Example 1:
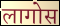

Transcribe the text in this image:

लागोस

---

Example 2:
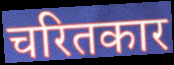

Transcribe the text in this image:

चरितकार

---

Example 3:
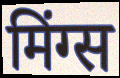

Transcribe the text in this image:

मिंग्स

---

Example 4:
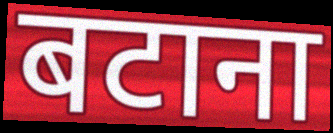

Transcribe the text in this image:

बटाना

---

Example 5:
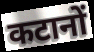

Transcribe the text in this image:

कटानों